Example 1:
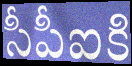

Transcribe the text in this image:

సీపీఐకి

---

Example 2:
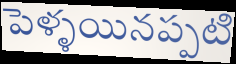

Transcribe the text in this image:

పెళ్ళయినప్పటి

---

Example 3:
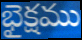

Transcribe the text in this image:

భైక్షము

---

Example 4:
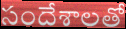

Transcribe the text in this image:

సందేశాలతో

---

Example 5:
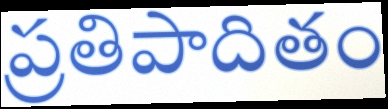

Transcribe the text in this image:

ప్రతిపాదితం